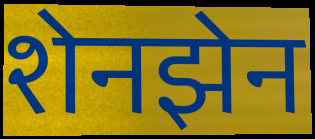
शेनझेन